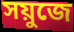
সয়ুজে